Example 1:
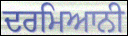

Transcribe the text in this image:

ਦਰਮਿਆਨੀ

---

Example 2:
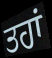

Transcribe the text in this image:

ਤਹਾਂ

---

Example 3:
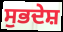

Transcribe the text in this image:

ਸੁਭਦੇਸ਼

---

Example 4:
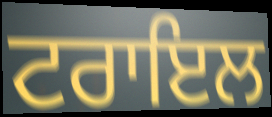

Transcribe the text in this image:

ਟਰਾਇਲ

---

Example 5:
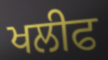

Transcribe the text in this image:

ਖਲੀਫ